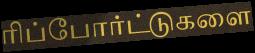
ரிப்போர்ட்டுகளை